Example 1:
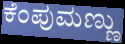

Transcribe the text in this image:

ಕೆಂಪುಮಣ್ಣು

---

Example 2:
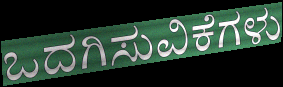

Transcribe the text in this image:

ಒದಗಿಸುವಿಕೆಗಳು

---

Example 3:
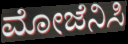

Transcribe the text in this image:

ಮೋಜೆನಿಸಿ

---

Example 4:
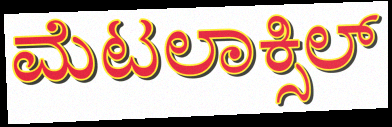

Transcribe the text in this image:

ಮೆಟಲಾಕ್ಸಿಲ್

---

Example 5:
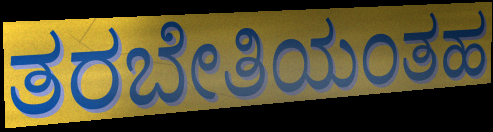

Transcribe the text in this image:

ತರಬೇತಿಯಂತಹ